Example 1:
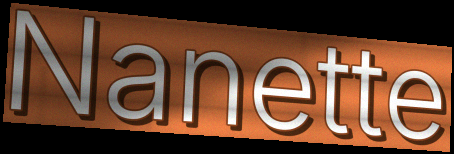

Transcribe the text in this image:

Nanette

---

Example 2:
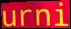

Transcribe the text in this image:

urni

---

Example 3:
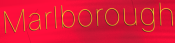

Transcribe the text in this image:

Marlborough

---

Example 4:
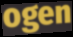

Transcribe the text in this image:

ogen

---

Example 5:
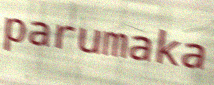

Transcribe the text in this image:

parumaka